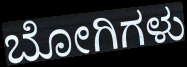
ಬೋಗಿಗಳು